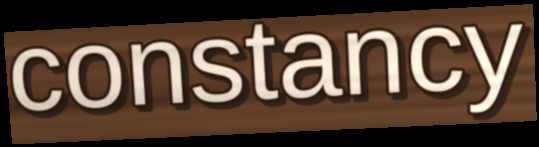
constancy